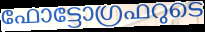
ഫോട്ടോഗ്രഫറുടെ